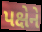
પક્ષેને